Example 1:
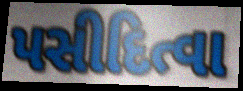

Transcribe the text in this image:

પસીદિત્વા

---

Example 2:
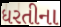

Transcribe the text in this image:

ધરતીના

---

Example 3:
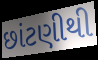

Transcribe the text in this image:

છાંટણીથી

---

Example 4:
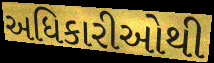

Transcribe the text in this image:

અધિકારીઓથી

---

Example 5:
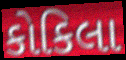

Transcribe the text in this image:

કોકિલા